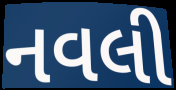
નવલી